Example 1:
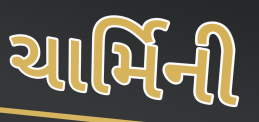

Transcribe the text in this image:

ચાર્મિની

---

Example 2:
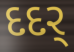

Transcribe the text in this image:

દદર્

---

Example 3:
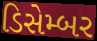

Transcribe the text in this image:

ડિસેમ્બર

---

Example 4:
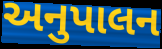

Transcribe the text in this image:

અનુપાલન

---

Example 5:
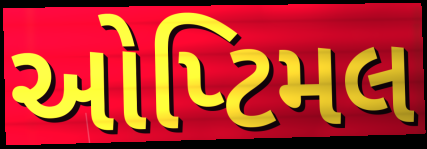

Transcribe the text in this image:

ઓપ્ટિમલ